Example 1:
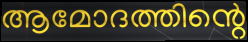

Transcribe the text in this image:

ആമോദത്തിന്റെ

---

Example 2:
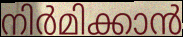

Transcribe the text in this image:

നിർമിക്കാൻ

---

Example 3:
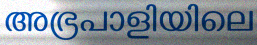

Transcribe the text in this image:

അഭ്രപാളിയിലെ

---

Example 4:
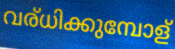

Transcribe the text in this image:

വര്ധിക്കുമ്പോള്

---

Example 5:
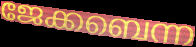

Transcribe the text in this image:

ജേക്കബെന്ന